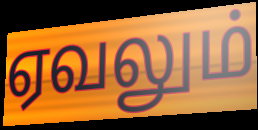
ஏவலும்